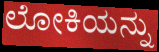
ಲೋಕಿಯನ್ನು